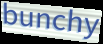
bunchy